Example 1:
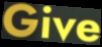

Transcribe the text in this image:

Give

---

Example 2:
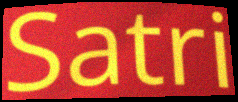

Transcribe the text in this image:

Satri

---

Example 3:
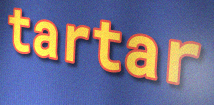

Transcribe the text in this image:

tartar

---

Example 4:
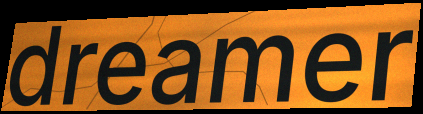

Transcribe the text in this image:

dreamer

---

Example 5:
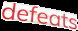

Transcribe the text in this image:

defeats